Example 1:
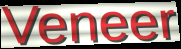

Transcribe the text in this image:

Veneer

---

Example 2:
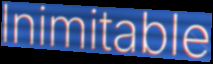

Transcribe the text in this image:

Inimitable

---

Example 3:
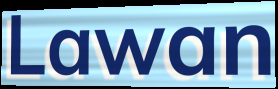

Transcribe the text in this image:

Lawan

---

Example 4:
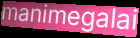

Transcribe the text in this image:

manimegalai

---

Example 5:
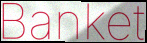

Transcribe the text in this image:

Banket